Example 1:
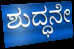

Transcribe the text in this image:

ಶುದ್ಧನೇ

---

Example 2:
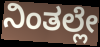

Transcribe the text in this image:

ನಿಂತಲ್ಲೇ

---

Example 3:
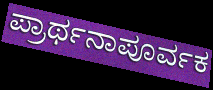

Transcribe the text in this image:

ಪ್ರಾರ್ಥನಾಪೂರ್ವಕ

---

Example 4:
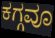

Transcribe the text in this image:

ಕಗ್ಗವೂ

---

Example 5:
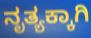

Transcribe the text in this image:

ನೃತ್ಯಕ್ಕಾಗಿ